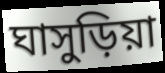
ঘাসুড়িয়া